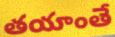
తయాంతే